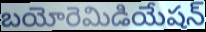
బయోరెమిడియేషన్